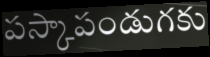
పస్కాపండుగకు